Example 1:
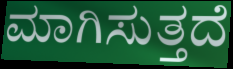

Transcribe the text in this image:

ಮಾಗಿಸುತ್ತದೆ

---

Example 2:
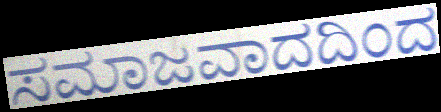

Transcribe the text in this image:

ಸಮಾಜವಾದದಿಂದ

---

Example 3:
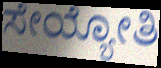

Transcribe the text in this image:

ಸೇಯ್ಯೋತಿ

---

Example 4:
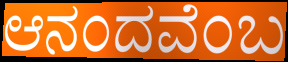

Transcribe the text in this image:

ಆನಂದವೆಂಬ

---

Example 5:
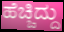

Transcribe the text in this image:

ಹೆಚ್ಚಿದ್ದು